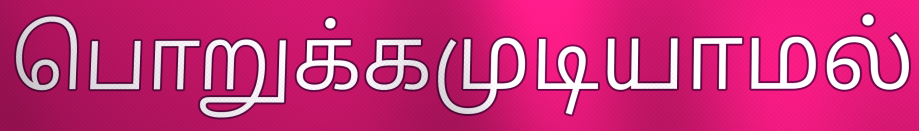
பொறுக்கமுடியாமல்